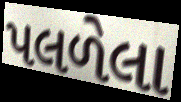
પલળેલા